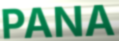
PANA